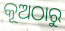
କୂଅଠାରୁ